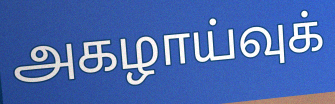
அகழாய்வுக்